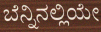
ಬೆನ್ನಿನಲ್ಲಿಯೇ